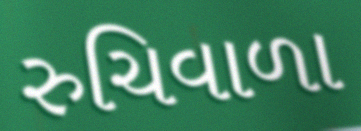
રુચિવાળા